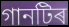
গানটিৰ